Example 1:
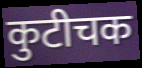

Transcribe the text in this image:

कुटीचक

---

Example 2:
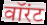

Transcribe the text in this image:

वॉरंट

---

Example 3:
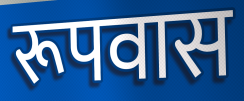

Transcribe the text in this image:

रूपवास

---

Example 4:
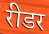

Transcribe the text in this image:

रीडर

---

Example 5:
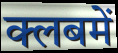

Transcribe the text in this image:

क्लबमें